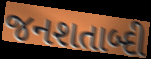
જનશતાબ્દી